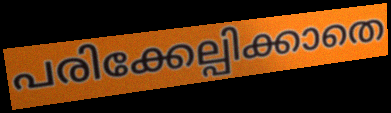
പരിക്കേല്പിക്കാതെ